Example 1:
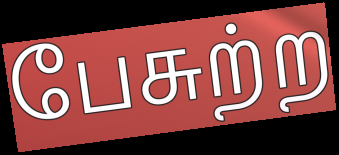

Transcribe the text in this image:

பேசுற்ற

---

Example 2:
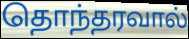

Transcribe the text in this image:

தொந்தரவால்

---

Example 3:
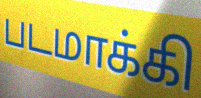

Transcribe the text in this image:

படமாக்கி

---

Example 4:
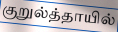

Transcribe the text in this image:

குறுல்த்தாயில்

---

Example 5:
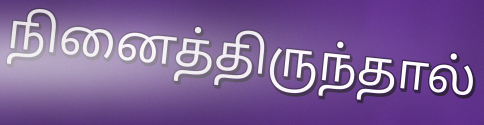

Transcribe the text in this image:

நினைத்திருந்தால்